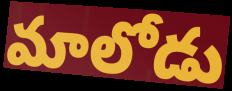
మాలోడు